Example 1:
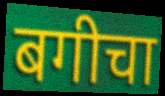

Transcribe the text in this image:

बगीचा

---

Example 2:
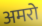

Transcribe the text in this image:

अमरो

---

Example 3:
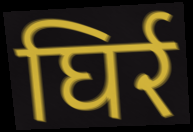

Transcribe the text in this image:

घिर्र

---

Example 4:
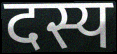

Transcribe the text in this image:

दस्य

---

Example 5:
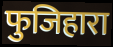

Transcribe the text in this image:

फुजिहारा